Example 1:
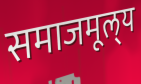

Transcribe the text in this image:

समाजमूल्य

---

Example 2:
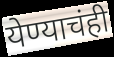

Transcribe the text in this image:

येण्याचंही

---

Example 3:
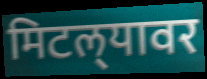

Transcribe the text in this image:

मिटल्यावर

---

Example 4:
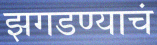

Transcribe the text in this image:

झगडण्याचं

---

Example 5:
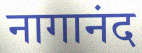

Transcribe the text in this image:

नागानंद